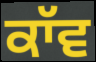
ਕਾੱਵ